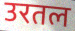
उरतल